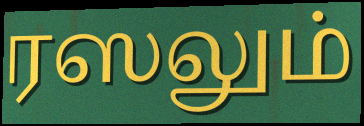
ரஸலும்